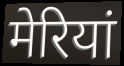
मेरियां